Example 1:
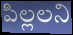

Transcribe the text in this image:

పిల్లలని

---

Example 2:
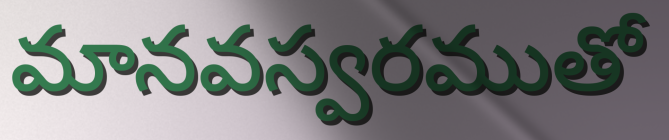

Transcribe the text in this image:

మానవస్వరముతో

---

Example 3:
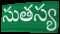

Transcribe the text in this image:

సుతస్య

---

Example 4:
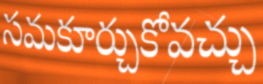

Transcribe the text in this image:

సమకూర్చుకోవచ్చు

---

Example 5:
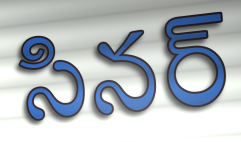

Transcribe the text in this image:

సినర్